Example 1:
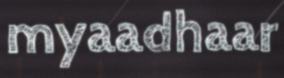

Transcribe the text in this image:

myaadhaar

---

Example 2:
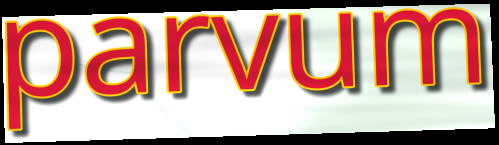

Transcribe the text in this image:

parvum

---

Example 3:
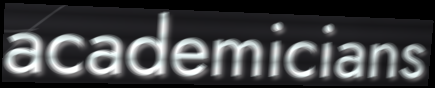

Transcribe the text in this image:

academicians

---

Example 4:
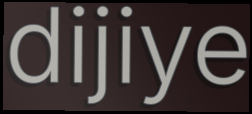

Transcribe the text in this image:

dijiye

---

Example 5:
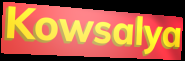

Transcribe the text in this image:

Kowsalya